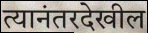
त्यानंतरदेखील